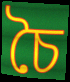
চৈ